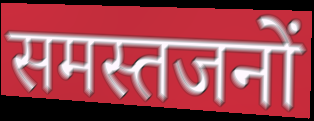
समस्तजनों